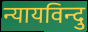
न्यायविन्दु